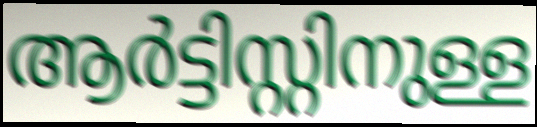
ആർട്ടിസ്റ്റിനുള്ള